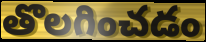
తొలగించడం